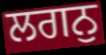
ਲਗਨੁ